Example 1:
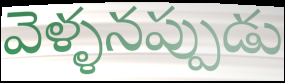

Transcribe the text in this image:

వెళ్ళనప్పుడు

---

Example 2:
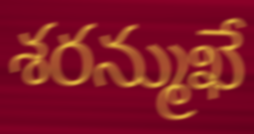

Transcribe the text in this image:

శరన్ముఖే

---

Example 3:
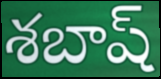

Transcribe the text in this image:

శబాష్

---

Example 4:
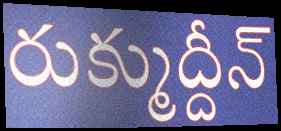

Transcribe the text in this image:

రుక్ముద్దీన్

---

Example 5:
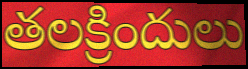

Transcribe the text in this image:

తలక్రిందులు